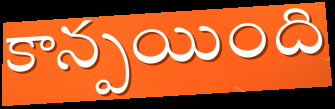
కాన్పయింది